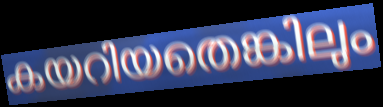
കയറിയതെങ്കിലും